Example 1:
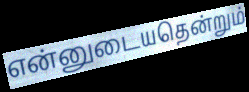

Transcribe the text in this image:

என்னுடையதென்றும்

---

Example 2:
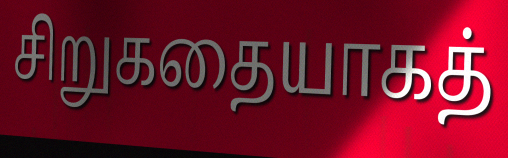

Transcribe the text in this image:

சிறுகதையாகத்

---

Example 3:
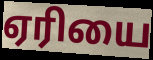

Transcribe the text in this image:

ஏரியை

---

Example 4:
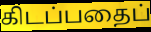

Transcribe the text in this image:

கிடப்பதைப்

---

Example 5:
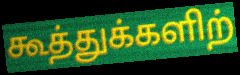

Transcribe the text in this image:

கூத்துக்களிற்